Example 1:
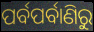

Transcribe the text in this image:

ପର୍ବପର୍ବାଣିରୁ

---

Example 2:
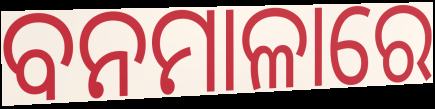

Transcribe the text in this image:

ବନମାଳାରେ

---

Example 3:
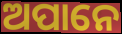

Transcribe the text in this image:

ଅପାନେ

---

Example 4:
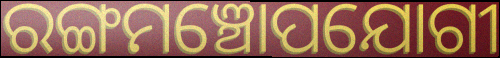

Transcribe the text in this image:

ରଙ୍ଗମଞ୍ଚୋପଯୋଗୀ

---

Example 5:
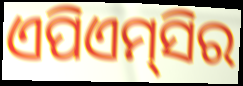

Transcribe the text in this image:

ଏପିଏମ୍‌ସିର